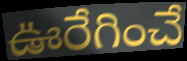
ఊరేగించే